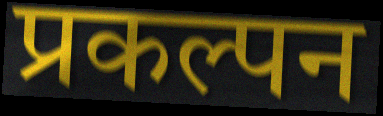
प्रकल्पन